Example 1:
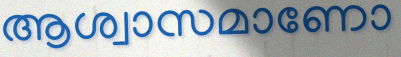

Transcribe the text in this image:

ആശ്വാസമാണോ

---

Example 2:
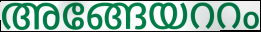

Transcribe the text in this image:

അങ്ങേയററം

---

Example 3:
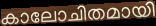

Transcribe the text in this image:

കാലോചിതമായി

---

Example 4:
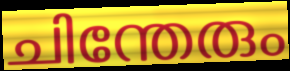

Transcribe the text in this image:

ചിന്തേരും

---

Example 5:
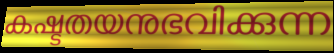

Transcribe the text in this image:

കഷ്ടതയനുഭവിക്കുന്ന